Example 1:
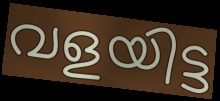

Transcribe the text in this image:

വളയിട്ട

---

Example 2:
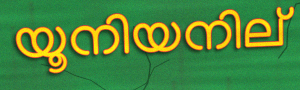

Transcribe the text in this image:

യൂനിയനില്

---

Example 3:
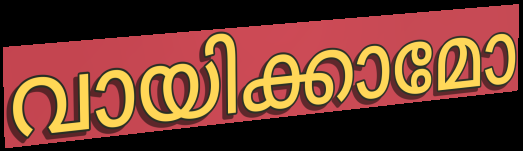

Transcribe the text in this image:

വായിക്കാമോ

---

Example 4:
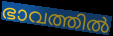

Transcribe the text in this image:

ഭാവത്തിൽ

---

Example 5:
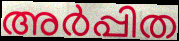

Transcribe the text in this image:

അർപ്പിത